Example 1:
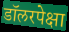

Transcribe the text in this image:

डॉलरपेक्षा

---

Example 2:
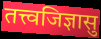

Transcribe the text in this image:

तत्त्वजिज्ञासु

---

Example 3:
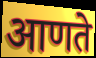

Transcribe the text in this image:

आणते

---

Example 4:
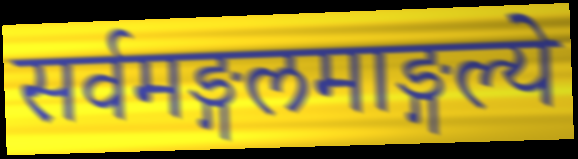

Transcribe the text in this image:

सर्वमङ्गलमाङ्गल्ये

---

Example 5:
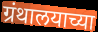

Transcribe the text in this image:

ग्रंथालयाच्या